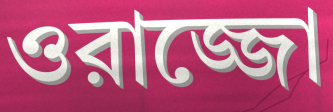
ওরাজ্জো